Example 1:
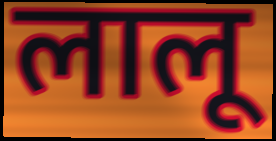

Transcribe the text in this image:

लालू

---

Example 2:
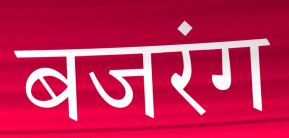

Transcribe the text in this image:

बजरंग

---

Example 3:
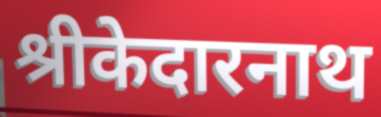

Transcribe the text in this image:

श्रीकेदारनाथ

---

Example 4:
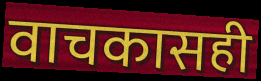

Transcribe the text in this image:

वाचकासही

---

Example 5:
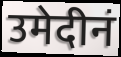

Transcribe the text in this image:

उमेदीनं